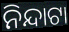
ନିନ୍ଦାଟା